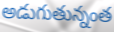
అడుగుతున్నంత